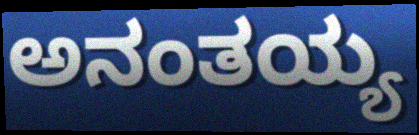
ಅನಂತಯ್ಯ